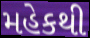
મહેકથી